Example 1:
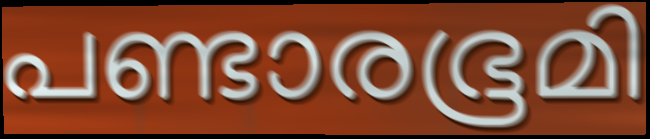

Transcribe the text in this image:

പണ്ടാരഭൂമി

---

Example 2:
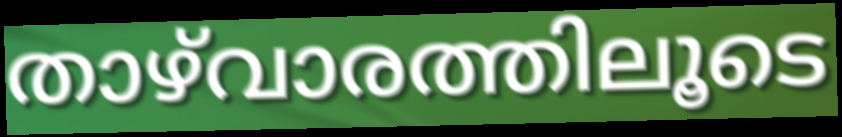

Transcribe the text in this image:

താഴ്‌വാരത്തിലൂടെ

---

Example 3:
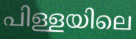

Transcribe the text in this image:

പിള്ളയിലെ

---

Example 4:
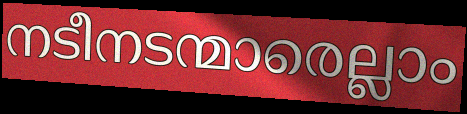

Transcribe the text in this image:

നടീനടന്മാരെല്ലാം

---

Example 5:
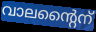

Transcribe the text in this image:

വാലന്റൈന്